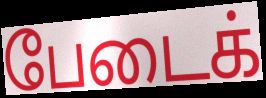
பேடைக்